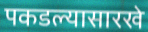
पकडल्यासारखे